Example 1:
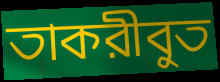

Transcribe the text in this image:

তাকরীবুত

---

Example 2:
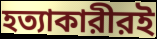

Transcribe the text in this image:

হত্যাকারীরই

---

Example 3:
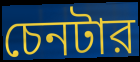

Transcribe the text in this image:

চেনটার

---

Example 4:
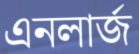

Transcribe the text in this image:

এনলার্জ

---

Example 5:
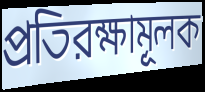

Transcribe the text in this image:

প্রতিরক্ষামূলক